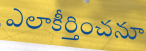
ఎలాకీర్తించనూ